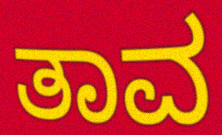
ತಾವ